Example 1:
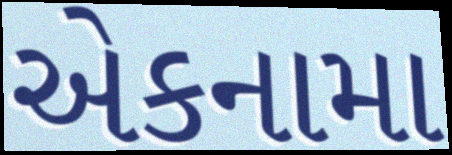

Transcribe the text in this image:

એકનામા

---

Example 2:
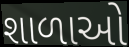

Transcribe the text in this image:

શાળાઓ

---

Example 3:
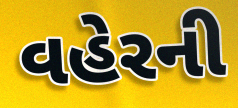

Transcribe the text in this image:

વહેરની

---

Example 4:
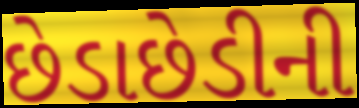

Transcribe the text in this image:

છેડાછેડીની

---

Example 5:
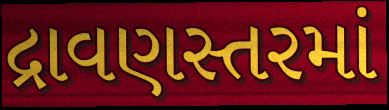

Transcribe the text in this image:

દ્રાવણસ્તરમાં